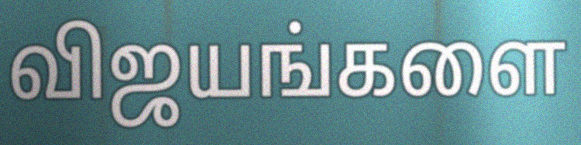
விஜயங்களை